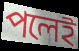
পলেই